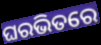
ଘରଭିତରେ